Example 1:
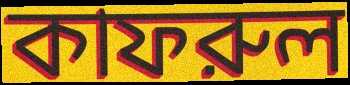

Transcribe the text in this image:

কাফরুল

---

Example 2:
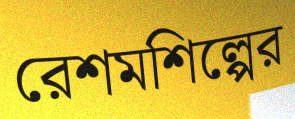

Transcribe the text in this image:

রেশমশিল্পের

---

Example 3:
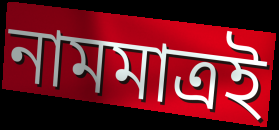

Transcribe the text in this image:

নামমাত্রই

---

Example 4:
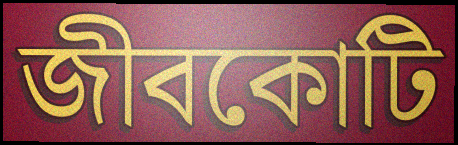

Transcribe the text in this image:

জীবকোটি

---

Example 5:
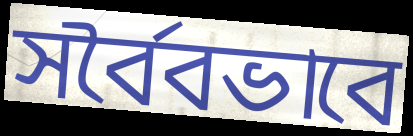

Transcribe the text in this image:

সর্বৈবভাবে